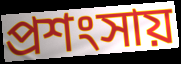
প্রশংসায়